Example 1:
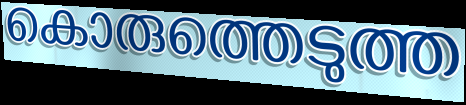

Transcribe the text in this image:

കൊരുത്തെടുത്ത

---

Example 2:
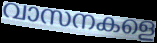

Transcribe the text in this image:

വാസനകളെ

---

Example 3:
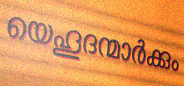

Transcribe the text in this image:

യെഹൂദന്മാർക്കും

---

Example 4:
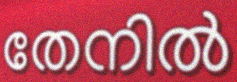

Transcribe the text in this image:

തേനിൽ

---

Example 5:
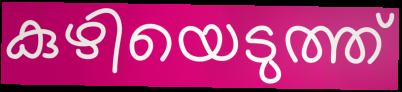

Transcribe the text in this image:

കുഴിയെടുത്ത്